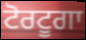
ਟੋਰਟੂਗਾ